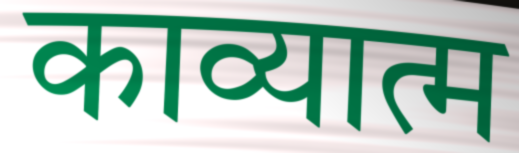
काव्यात्म